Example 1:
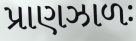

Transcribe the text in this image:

પ્રાણઝાળઃ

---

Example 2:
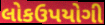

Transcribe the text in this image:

લોકઉપયોગી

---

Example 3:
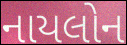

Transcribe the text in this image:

નાયલોન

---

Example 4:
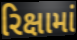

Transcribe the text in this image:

રિક્ષામાં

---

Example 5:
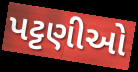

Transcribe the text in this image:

પટ્ટણીઓ